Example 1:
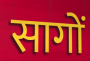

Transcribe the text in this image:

सागों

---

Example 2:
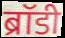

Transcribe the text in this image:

ब्रॉडी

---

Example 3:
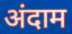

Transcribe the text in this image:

अंदाम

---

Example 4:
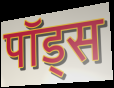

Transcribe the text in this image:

पॉड्स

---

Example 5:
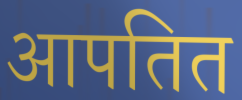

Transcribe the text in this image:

आपतित